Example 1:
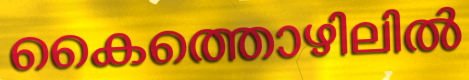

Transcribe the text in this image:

കൈത്തൊഴിലിൽ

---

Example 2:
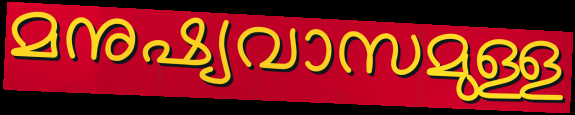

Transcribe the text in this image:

മനുഷ്യവാസമുള്ള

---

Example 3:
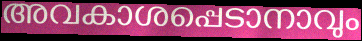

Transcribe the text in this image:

അവകാശപ്പെടാനാവും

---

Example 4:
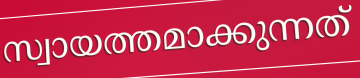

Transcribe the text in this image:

സ്വായത്തമാക്കുന്നത്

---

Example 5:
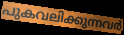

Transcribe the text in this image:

പുകവലിക്കുന്നവർ